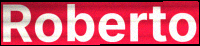
Roberto